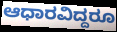
ಆಧಾರವಿದ್ದರೂ